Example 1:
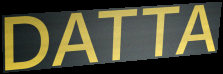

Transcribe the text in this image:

DATTA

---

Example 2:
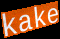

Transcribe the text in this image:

kake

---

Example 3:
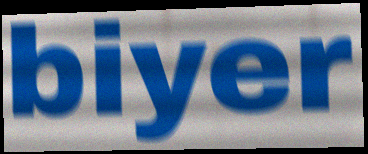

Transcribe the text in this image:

biyer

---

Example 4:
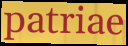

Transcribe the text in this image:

patriae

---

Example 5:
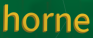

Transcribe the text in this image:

horne